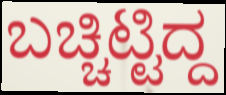
ಬಚ್ಚಿಟ್ಟಿದ್ದ